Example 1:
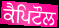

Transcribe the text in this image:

ਕੈਪਿਟੌਲ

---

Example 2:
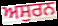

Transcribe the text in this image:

ਅਸੁਰਨ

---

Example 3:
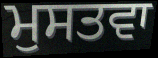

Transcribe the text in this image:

ਮੁਸਤਵਾ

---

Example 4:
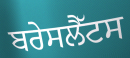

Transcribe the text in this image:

ਬਰੇਸਲੈੱਟਸ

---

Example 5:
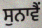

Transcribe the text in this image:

ਸੁਨਾਵੈਂ